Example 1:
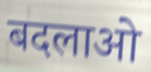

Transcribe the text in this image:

बदलाओ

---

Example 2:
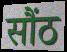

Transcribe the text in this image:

सौंठ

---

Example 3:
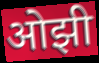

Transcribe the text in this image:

ओझी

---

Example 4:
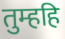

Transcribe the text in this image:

तुम्हहि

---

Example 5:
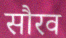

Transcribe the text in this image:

सौरव